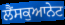
ਲੈਂਸਕੁਆਨੇਟ